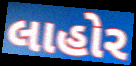
લાહોર